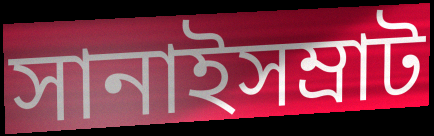
সানাইসম্রাট